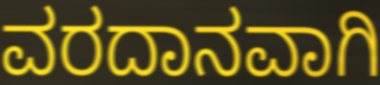
ವರದಾನವಾಗಿ